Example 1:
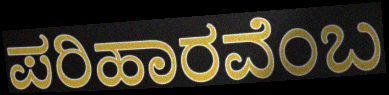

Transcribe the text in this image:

ಪರಿಹಾರವೆಂಬ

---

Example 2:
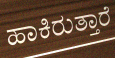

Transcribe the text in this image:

ಹಾಕಿರುತ್ತಾರೆ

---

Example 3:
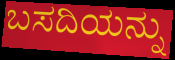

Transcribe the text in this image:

ಬಸದಿಯನ್ನು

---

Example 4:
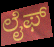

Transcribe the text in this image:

ಲೈಫ್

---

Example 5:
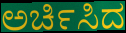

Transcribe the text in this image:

ಅರ್ಚಿಸಿದ